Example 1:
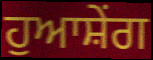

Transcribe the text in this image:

ਹੁਆਸ਼ੇਂਗ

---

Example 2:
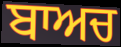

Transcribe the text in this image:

ਬਾਅਚ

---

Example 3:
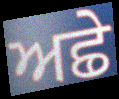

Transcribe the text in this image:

ਅਛੇ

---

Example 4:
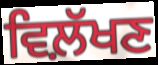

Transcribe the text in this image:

ਵਿਲ਼ੱਖਣ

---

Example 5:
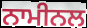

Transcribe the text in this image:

ਨਾਮੀਨਲ